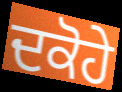
ਦਕੋਹੇ